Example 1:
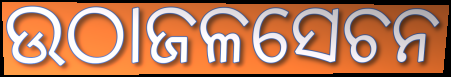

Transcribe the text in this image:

ଉଠାଜଳସେଚନ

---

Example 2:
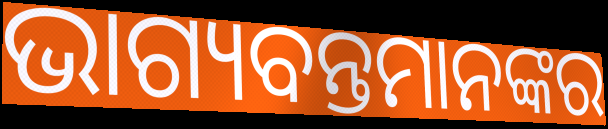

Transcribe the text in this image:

ଭାଗ୍ୟବନ୍ତମାନଙ୍କର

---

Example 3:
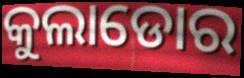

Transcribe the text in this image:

କୁଲାଡୋର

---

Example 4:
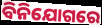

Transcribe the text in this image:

ବିନିଯୋଗରେ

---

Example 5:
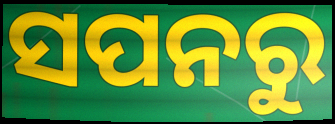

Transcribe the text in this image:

ସପନରୁ